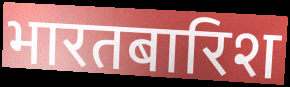
भारतबारिश